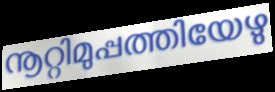
നൂറ്റിമുപ്പത്തിയേഴു